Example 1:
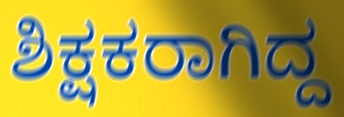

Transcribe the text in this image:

ಶಿಕ್ಷಕರಾಗಿದ್ದ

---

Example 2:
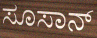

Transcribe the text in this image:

ಸೂಸಾನ್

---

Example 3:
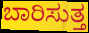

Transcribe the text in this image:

ಬಾರಿಸುತ್ತ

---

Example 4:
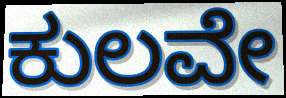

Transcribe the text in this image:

ಕುಲವೇ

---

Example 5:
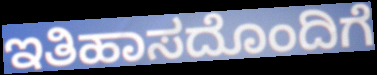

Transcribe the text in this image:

ಇತಿಹಾಸದೊಂದಿಗೆ